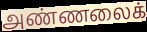
அண்ணலைக்